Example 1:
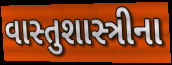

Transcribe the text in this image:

વાસ્તુશાસ્ત્રીના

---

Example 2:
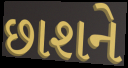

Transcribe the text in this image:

છાશને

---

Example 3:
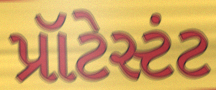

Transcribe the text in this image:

પ્રૉટેસ્ટંટ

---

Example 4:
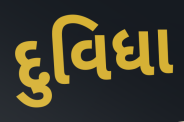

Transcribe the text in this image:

દુવિધા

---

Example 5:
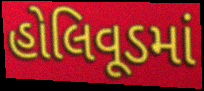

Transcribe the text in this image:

હોલિવૂડમાં